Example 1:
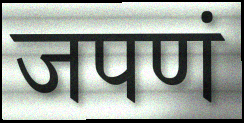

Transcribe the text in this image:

जपणं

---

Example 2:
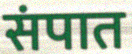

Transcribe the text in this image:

संपात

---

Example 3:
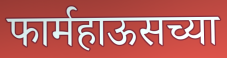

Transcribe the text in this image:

फार्महाऊसच्या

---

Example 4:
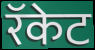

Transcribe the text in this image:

रॅकेट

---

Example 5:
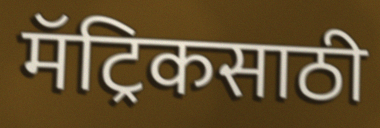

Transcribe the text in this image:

मॅट्रिकसाठी